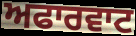
ਅਫਾਰਵਾਟ